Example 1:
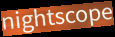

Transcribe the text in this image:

nightscope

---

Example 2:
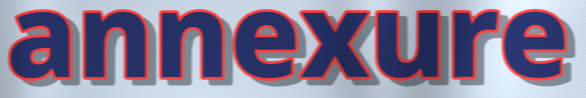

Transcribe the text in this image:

annexure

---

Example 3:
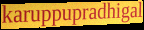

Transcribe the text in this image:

karuppupradhigal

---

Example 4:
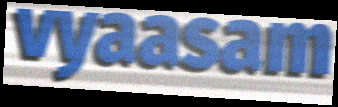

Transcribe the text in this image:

vyaasam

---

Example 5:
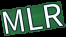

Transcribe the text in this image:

MLR